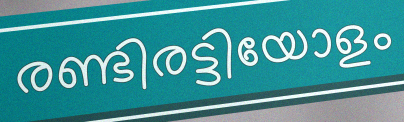
രണ്ടിരട്ടിയോളം